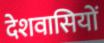
देशवासियों